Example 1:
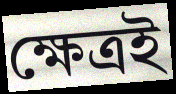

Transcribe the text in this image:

ক্ষেত্ৰই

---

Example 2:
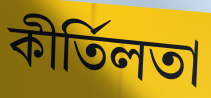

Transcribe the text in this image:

কীৰ্তিলতা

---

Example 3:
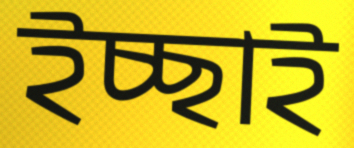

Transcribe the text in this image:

ইচ্ছাই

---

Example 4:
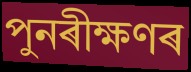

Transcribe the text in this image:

পুনৰীক্ষণৰ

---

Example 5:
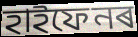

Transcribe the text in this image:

হাইফেনৰ